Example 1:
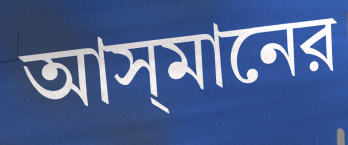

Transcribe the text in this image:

আস্‌মানের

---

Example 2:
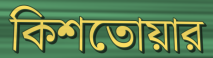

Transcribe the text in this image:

কিশতোয়ার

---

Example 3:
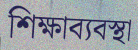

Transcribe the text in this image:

শিক্ষাব্যবস্থা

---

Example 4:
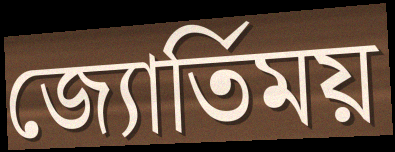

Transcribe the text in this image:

জ্যোর্তিময়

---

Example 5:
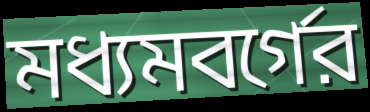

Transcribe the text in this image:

মধ্যমবর্গের